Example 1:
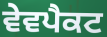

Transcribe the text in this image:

ਵੇਵਪੈਕਟ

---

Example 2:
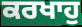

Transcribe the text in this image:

ਕਰਖਾਹੁ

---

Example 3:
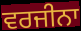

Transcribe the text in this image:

ਵਰਜੀਨਾ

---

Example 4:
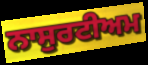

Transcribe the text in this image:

ਨਾਸੁਰਟੀਅਮ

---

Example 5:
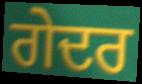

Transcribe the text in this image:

ਗੇਦਰ